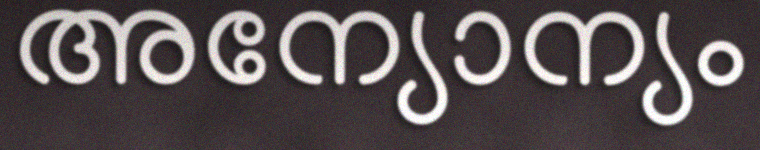
അന്യോന്യം